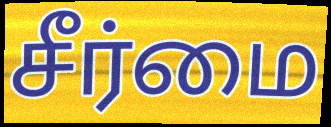
சீர்மை